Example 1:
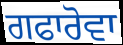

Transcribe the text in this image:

ਗਫਾਰੋਵਾ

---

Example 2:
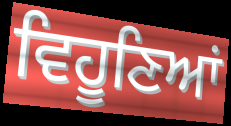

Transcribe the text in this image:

ਵਿਹੂਣਿਆਂ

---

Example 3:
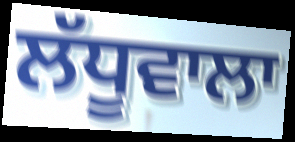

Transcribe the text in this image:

ਲੱਧੂਵਾਲਾ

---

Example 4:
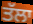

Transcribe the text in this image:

ਤੱਲਾ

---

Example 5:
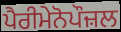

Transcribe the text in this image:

ਪੈਰੀਮੇਨੋਪੌਜ਼ਲ